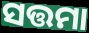
ସତ୍ତମା